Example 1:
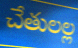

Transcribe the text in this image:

చేతులల్ల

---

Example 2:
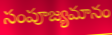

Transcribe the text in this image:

సంపూజ్యమానం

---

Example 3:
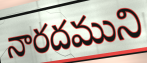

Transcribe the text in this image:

నారదముని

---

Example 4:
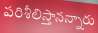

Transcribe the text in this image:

పరిశీలిస్తానన్నారు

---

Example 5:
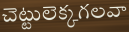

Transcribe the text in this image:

చెట్టులెక్కగలవా